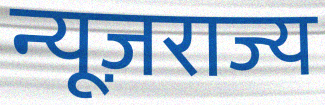
न्यूज़राज्य